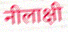
नीलाक्षी